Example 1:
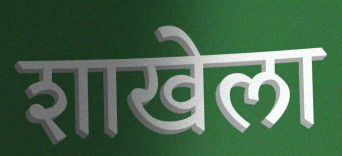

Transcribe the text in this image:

शाखेला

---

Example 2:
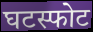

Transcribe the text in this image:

घटस्फोट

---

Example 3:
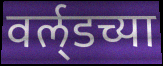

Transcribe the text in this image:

वर्ल्डच्या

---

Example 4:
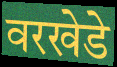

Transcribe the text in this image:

वरखेडे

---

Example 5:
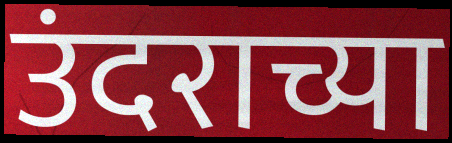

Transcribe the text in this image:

उंदराच्या